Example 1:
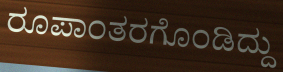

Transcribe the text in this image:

ರೂಪಾಂತರಗೊಂಡಿದ್ದು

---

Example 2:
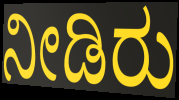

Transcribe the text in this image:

ನೀಡಿರು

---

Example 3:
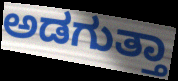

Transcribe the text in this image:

ಅಡಗುತ್ತಾ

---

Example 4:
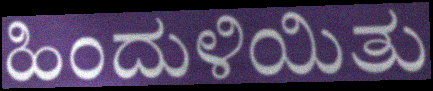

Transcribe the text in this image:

ಹಿಂದುಳಿಯಿತು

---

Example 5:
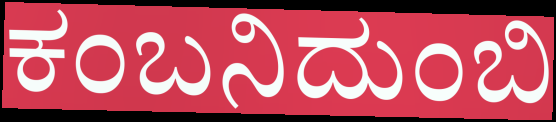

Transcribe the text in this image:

ಕಂಬನಿದುಂಬಿ